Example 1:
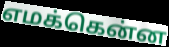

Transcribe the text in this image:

எமக்கென்ன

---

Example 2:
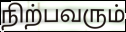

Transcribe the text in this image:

நிற்பவரும்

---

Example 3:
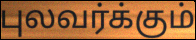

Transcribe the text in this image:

புலவர்க்கும்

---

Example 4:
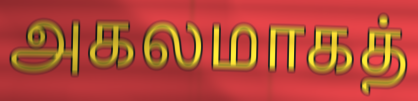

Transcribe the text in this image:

அகலமாகத்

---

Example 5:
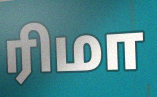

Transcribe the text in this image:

ரிமா